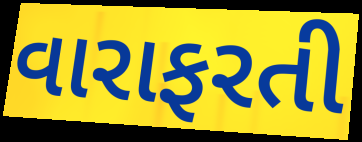
વારાફરતી